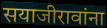
सयाजीरावांना